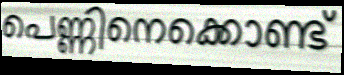
പെണ്ണിനെക്കൊണ്ട്